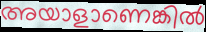
അയാളാണെങ്കിൽ